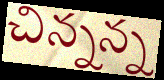
చిన్నన్న